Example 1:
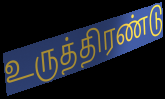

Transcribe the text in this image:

உருத்திரண்டு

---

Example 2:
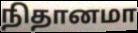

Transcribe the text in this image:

நிதானமா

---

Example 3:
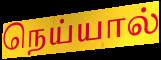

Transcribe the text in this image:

நெய்யால்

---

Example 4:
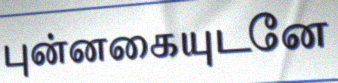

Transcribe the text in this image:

புன்னகையுடனே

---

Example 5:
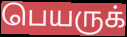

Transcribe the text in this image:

பெயருக்